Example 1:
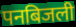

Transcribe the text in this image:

पनबिजली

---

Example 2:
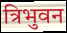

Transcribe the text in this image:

त्रिभुवन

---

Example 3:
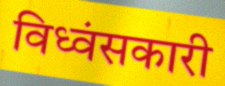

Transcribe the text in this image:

विध्वंसकारी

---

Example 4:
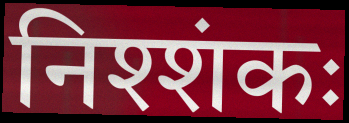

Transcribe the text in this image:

निश्शंकः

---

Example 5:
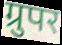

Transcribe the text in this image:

ग्रुपर